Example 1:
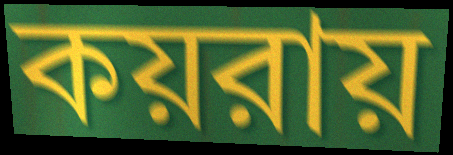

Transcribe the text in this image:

কয়রায়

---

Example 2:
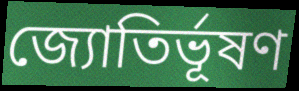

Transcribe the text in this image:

জ্যোতির্ভূষণ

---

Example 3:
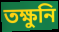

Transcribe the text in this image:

তক্ষুনি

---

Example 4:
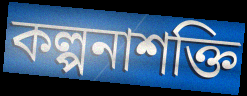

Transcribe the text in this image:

কল্পনাশক্তি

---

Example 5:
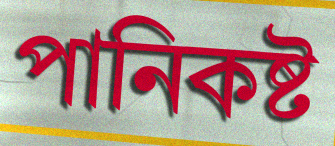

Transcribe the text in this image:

পানিকষ্ট